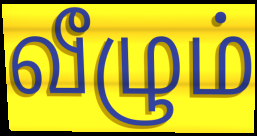
வீழும்